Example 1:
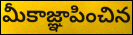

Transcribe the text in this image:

మీకాజ్ఞాపించిన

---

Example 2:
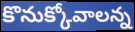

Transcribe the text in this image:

కొనుక్కోవాలన్న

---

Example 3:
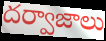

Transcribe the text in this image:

దర్వాజాలు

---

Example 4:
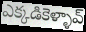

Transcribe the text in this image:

ఎక్కడికెళ్ళావ్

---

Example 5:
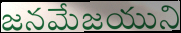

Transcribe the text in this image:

జనమేజయుని